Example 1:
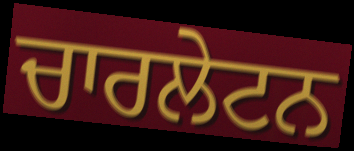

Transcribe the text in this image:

ਚਾਰਲੇਟਨ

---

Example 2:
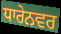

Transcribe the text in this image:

ਧਾਰੇਨਵਰ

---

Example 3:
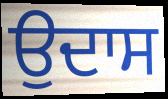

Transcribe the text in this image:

ਉਦਾਸ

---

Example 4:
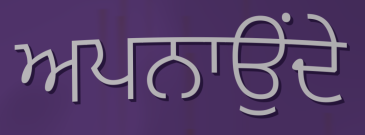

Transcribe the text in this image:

ਅਪਨਾਉਂਦੇ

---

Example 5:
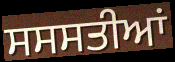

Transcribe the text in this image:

ਸਸਸਤੀਆਂ